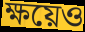
ক্ষয়েও